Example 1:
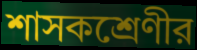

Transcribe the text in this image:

শাসকশ্রেণীর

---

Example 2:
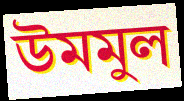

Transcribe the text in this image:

উমমুল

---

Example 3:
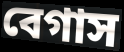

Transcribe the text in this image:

বেগাস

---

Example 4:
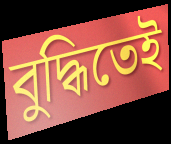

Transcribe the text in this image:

বুদ্ধিতেই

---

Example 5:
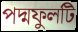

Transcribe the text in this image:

পদ্মফুলটি